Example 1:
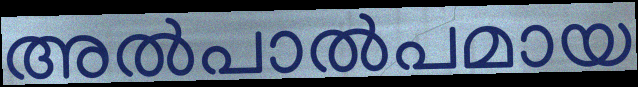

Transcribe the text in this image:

അൽപാൽപമായ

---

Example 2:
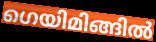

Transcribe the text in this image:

ഗെയിമിങ്ങിൽ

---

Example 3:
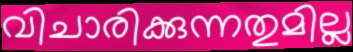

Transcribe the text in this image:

വിചാരിക്കുന്നതുമില്ല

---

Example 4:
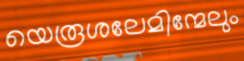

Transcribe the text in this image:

യെരൂശലേമിന്മേലും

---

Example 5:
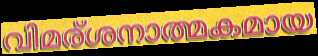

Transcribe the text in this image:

വിമര്ശനാത്മകമായ